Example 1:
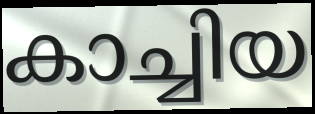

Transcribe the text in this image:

കാച്ചിയ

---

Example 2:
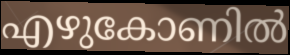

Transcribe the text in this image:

എഴുകോണിൽ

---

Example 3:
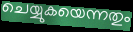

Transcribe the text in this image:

ചെയ്യുകയെന്നതും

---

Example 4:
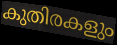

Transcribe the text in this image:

കുതിരകളും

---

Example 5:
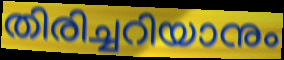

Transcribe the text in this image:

തിരിച്ചറിയാനും